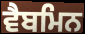
ਵੈਬਮਿਨ